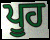
ਪੂਹ